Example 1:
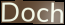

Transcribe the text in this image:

Doch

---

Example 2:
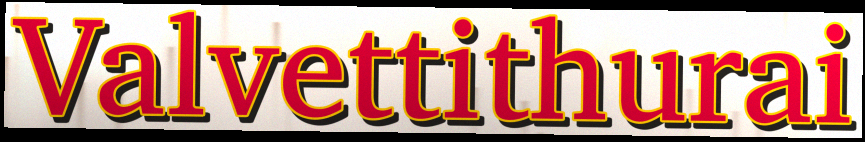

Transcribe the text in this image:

Valvettithurai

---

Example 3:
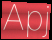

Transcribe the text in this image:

Apj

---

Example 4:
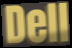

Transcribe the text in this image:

Dell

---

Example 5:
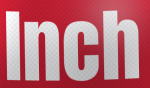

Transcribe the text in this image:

Inch